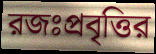
রজঃপ্রবৃত্তির